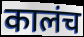
कालंच